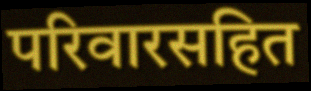
परिवारसहित